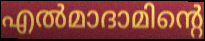
എൽമാദാമിന്റെ